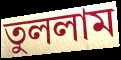
তুললাম